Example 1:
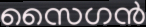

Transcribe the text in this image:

സൈഗൻ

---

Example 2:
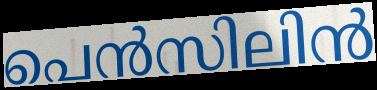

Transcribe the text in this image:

പെൻസിലിൻ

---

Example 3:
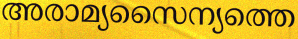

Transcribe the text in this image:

അരാമ്യസൈന്യത്തെ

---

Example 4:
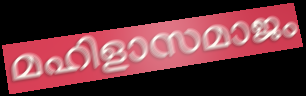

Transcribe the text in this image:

മഹിളാസമാജം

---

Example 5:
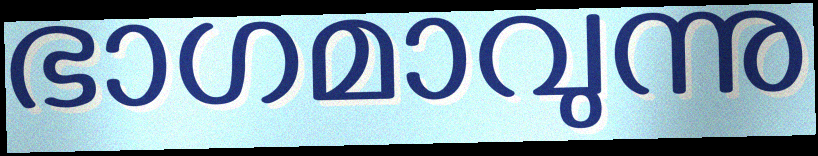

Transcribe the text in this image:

ഭാഗമാവുന്നു